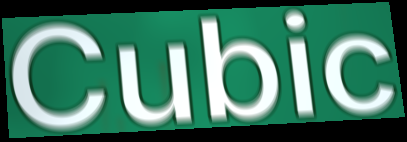
Cubic